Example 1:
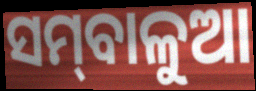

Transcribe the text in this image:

ସମ୍‌ବାଳୁଆ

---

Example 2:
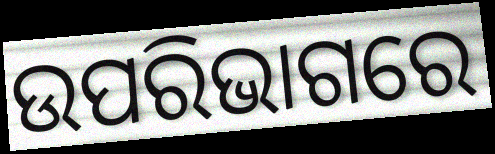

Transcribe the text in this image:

ଉପରିଭାଗରେ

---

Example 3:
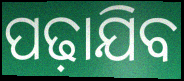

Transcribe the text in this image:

ପଢ଼ାଯିବ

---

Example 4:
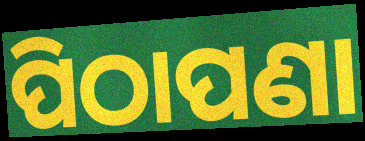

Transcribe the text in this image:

ପିଠାପଣା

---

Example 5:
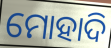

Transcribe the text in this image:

ମୋହାଦି